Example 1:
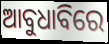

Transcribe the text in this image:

ଆବୁଧାବିରେ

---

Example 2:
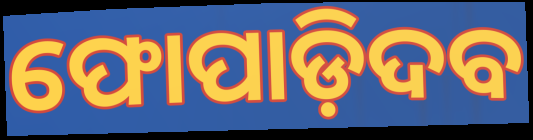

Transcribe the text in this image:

ଫୋପାଡ଼ିଦବ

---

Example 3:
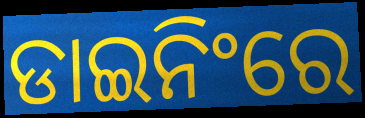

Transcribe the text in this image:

ଡାଇନିଂରେ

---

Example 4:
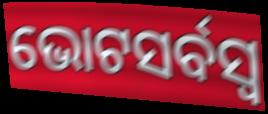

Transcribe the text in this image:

ଭୋଟସର୍ବସ୍ବ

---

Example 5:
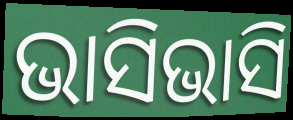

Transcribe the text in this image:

ଭାସିଭାସି